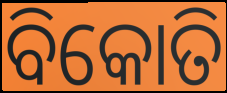
ବିକୋତି